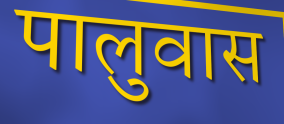
पालुवास